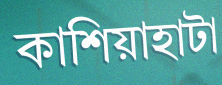
কাশিয়াহাটা